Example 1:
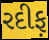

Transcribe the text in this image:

રદીફ઼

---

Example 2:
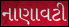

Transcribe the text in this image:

નાણાવટી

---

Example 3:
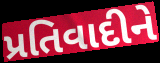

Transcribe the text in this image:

પ્રતિવાદીને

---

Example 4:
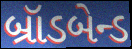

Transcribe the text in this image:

બ્રૉડબેન્ડ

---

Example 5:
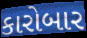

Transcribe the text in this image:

કારોબાર